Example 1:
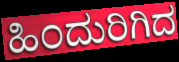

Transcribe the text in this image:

ಹಿಂದುರಿಗಿದ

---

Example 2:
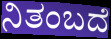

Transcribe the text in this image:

ನಿತಂಬದೆ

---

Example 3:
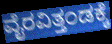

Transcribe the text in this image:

ವೈರವಿತ್ತಂಡಕ್ಕೆ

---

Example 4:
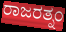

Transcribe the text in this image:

ರಾಜರತ್ನಂ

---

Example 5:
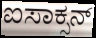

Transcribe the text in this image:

ಐಸಾಕ್ಸನ್